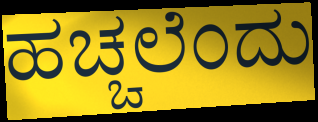
ಹಚ್ಚಲೆಂದು